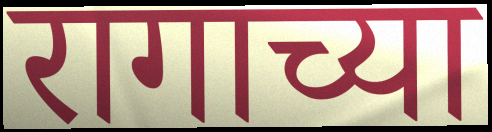
रागाच्या